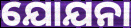
ଯୋଯନା